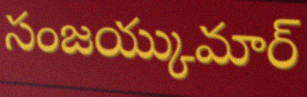
సంజయ్కుమార్